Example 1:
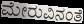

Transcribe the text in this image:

ಮೇರುವಿನಂತೆ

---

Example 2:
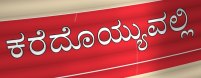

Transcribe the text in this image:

ಕರೆದೊಯ್ಯುವಲ್ಲಿ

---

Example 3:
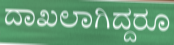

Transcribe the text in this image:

ದಾಖಲಾಗಿದ್ದರೂ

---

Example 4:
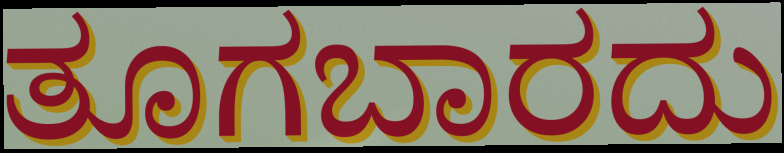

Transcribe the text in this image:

ತೂಗಬಾರದು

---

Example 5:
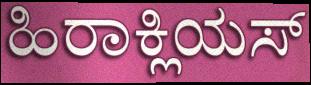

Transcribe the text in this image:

ಹಿರಾಕ್ಲಿಯಸ್